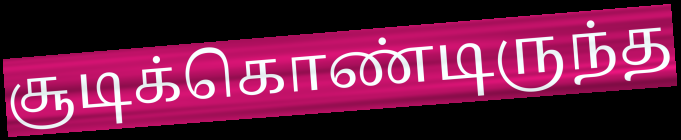
சூடிக்கொண்டிருந்த